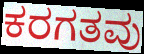
ಕರಗತವು